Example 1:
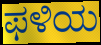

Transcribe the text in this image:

ಫಳಿಯ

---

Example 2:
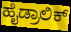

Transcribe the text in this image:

ಹೈಡ್ರಾಲಿಕ್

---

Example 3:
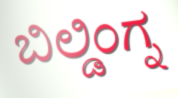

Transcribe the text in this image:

ಬಿಲ್ಡಿಂಗ್ನ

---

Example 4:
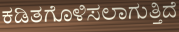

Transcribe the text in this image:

ಕಡಿತಗೊಳಿಸಲಾಗುತ್ತಿದೆ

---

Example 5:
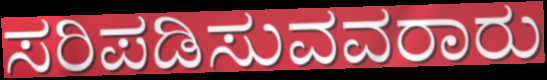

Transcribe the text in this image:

ಸರಿಪಡಿಸುವವರಾರು